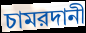
চামরদানী